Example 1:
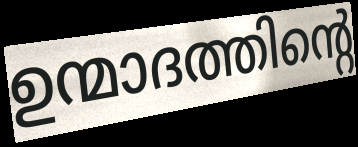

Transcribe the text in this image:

ഉന്മാദത്തിന്റെ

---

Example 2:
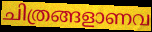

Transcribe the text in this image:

ചിത്രങ്ങളാണവ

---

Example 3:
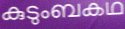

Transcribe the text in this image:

കുടുംബകഥ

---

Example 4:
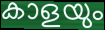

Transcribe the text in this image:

കാളയും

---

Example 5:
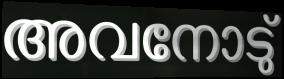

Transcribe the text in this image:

അവനോടു്